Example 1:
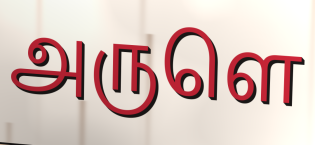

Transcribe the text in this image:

அருளெ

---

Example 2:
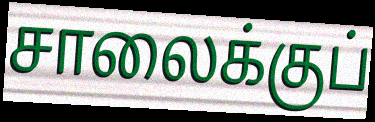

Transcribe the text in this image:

சாலைக்குப்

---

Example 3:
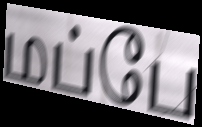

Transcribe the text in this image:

மப்பே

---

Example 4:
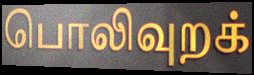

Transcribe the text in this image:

பொலிவுறக்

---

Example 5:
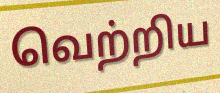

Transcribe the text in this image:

வெற்றிய